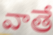
వాతే